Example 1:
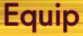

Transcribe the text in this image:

Equip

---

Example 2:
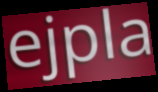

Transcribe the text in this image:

ejpla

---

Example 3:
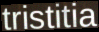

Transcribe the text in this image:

tristitia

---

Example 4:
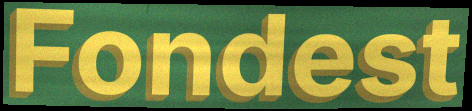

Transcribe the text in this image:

Fondest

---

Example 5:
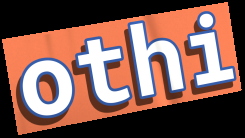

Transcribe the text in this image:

othi